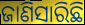
ଜାଣିସାରିଛି